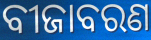
ବୀଜାବରଣ